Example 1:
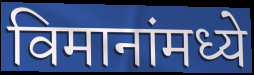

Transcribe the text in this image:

विमानांमध्ये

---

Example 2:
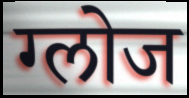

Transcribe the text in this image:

ग्लोज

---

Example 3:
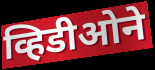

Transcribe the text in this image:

व्हिडीओने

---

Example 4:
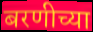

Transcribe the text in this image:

बरणीच्या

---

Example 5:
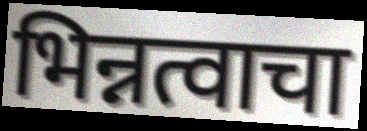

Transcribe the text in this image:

भिन्नत्वाचा